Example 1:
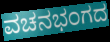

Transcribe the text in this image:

ವಚನಭಂಗದ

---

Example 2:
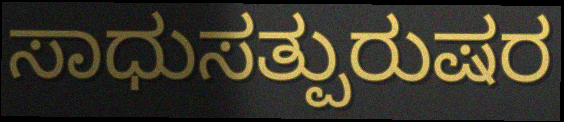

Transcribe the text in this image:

ಸಾಧುಸತ್ಪುರುಷರ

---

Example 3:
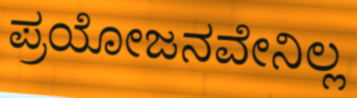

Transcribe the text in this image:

ಪ್ರಯೋಜನವೇನಿಲ್ಲ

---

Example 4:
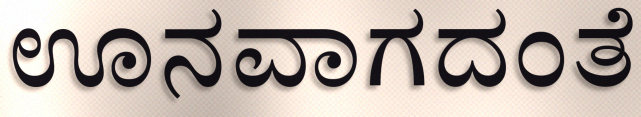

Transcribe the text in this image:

ಊನವಾಗದಂತೆ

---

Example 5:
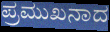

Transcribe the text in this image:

ಪ್ರಮುಖನಾದ